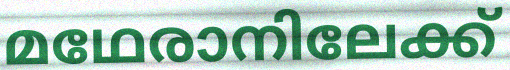
മഥേരാനിലേക്ക്